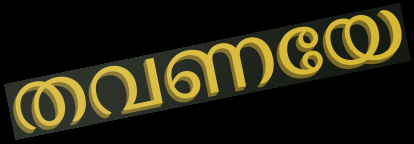
തവണയേ